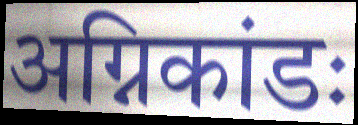
अग्निकांडः